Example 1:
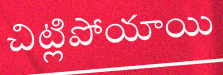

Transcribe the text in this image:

చిట్లిపోయాయి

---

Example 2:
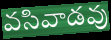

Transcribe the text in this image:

వసివాడవు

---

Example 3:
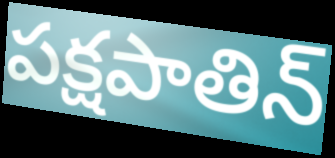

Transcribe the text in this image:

పక్షపాతిన్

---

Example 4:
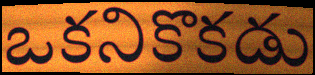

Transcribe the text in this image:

ఒకనికొకడు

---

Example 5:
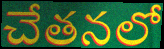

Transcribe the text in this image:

చేతనలో